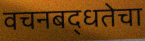
वचनबद्धतेचा